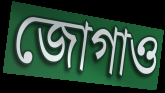
জোগাও